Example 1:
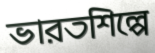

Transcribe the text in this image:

ভারতশিল্পে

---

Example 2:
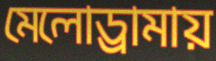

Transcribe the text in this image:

মেলোড্রামায়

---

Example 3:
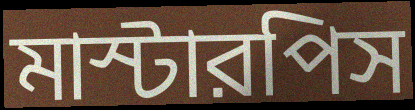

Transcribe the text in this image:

মাস্টারপিস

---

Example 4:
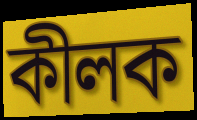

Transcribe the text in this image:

কীলক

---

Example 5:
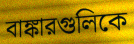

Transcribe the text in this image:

বাঙ্কারগুলিকে